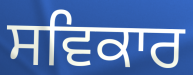
ਸਵਿਕਾਰ